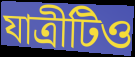
যাত্রীটিও